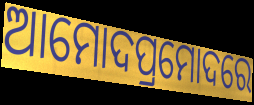
ଆମୋଦପ୍ରମୋଦରେ